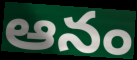
ఆనం